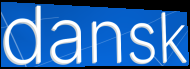
dansk